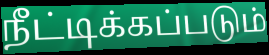
நீட்டிக்கப்படும்